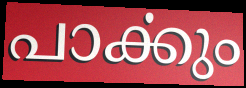
പാൎക്കും